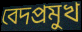
বেদপ্রমুখ